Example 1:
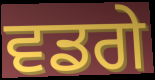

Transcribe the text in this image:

ਵਡਗੇ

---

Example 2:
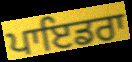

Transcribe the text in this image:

ਪਾਇਡਰਾ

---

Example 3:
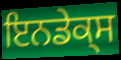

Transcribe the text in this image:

ਇਨਡੇਕ੍ਸ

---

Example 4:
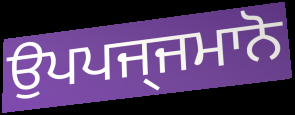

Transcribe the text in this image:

ਉਪਪਜ੍ਜਮਾਨੋ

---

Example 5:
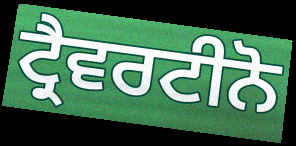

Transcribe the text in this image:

ਟ੍ਰੈਵਰਟੀਨੋ